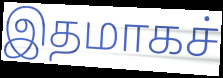
இதமாகச்